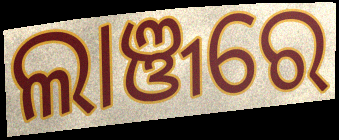
ଲାଞ୍ଜରେ